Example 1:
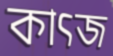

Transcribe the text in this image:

কাৎজ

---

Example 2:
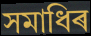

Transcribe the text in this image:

সমাধিৰ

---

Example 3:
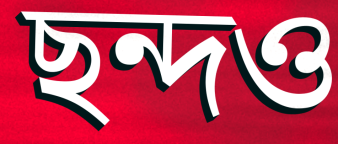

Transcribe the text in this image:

ছন্দও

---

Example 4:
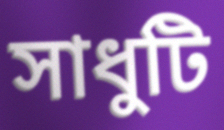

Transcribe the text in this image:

সাধুটি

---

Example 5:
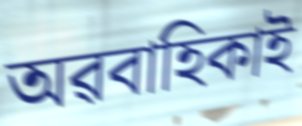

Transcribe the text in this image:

অৱবাহিকাই